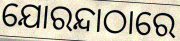
ଯୋରନ୍ଦାଠାରେ